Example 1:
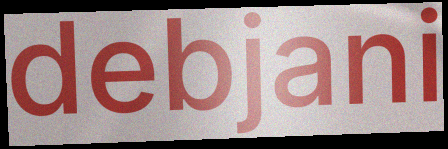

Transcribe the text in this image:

debjani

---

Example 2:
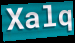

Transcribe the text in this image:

Xalq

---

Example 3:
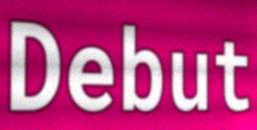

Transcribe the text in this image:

Debut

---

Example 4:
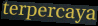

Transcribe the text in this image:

terpercaya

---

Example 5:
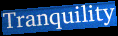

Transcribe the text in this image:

Tranquility